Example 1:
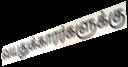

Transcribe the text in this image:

வயதுக்காரர்களுக்கு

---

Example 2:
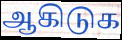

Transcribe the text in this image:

ஆகிடுக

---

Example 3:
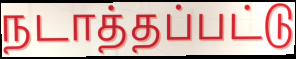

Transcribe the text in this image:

நடாத்தப்பட்டு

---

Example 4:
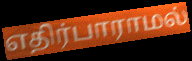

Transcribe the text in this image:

எதிர்பாராமல்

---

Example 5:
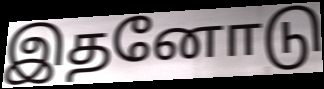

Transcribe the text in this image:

இதனோடு